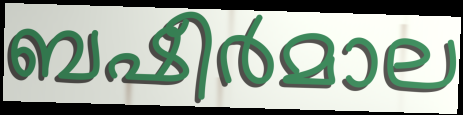
ബഷീർമാല